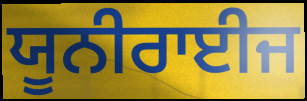
ਯੂਨੀਰਾਈਜ